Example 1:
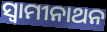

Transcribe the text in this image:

ସ୍ୱାମୀନାଥନ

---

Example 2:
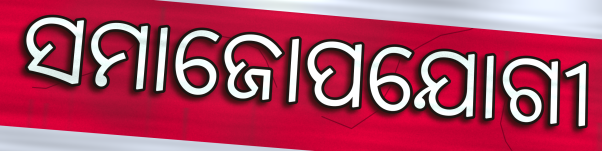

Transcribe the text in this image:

ସମାଜୋପଯୋଗୀ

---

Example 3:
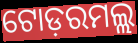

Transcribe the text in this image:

ଟୋଡ଼ରମଲ୍ଲ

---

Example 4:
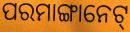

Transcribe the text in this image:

ପରମାଙ୍ଗାନେଟ୍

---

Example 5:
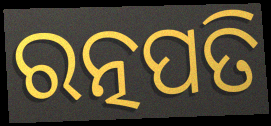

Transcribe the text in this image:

ରତ୍ନପତି